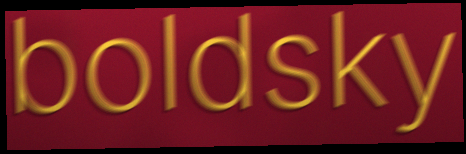
boldsky